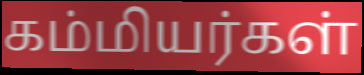
கம்மியர்கள்